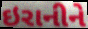
ઇરાનીને